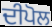
ਦੀਪੋਲ